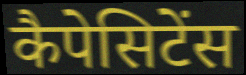
कैपेसिटेंस